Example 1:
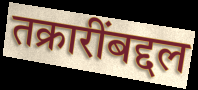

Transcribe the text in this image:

तक्रारींबद्दल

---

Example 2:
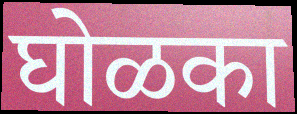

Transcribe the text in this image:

घोळका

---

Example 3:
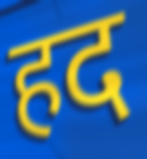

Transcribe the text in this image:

हद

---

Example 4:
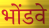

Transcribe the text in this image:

भोंडवे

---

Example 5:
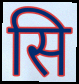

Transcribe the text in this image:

सि